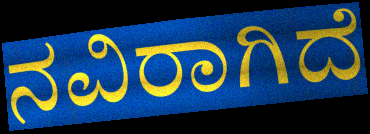
ನವಿರಾಗಿದೆ